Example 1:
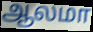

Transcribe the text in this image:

ஆலமா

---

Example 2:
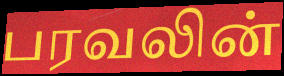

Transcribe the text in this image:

பரவலின்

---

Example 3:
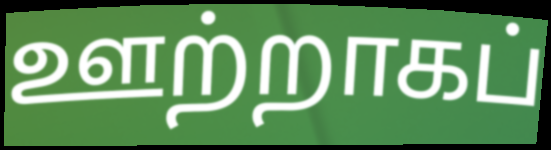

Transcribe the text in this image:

ஊற்றாகப்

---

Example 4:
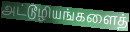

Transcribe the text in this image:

அட்டூழியங்களைத்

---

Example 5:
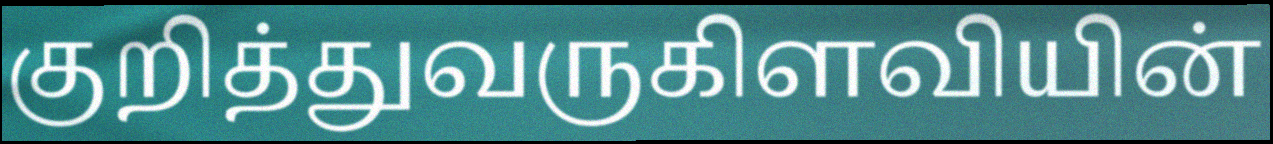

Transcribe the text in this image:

குறித்துவருகிளவியின்